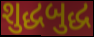
શુદ્ધબુદ્ધ